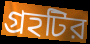
গ্রহটির